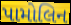
પામોલિન